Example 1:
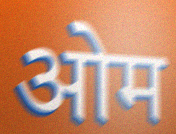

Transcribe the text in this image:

ओम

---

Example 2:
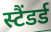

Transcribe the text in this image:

स्टैंडर्ड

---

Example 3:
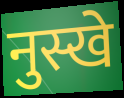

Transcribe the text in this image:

नुस्खे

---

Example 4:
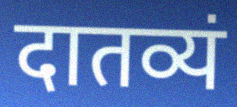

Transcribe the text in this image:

दातव्यं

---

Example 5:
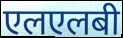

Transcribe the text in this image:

एलएलबी